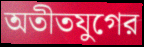
অতীতযুগের